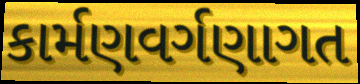
કાર્મણવર્ગણાગત